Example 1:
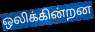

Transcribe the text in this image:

ஒலிக்கின்றன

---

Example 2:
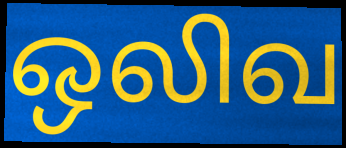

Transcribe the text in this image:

ஒலிவ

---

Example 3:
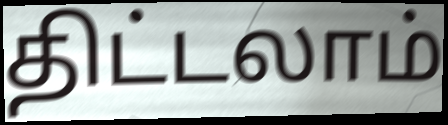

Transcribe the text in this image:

திட்டலாம்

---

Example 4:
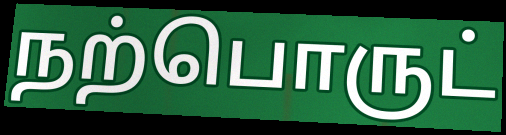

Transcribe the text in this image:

நற்பொருட்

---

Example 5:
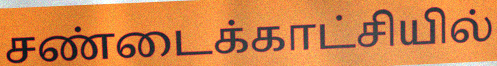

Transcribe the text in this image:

சண்டைக்காட்சியில்